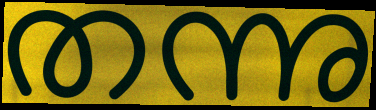
തന്നു